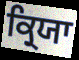
ਕ੍ਰਿਯਾ